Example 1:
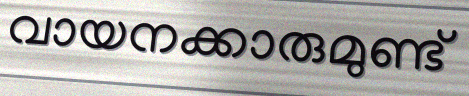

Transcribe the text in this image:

വായനക്കാരുമുണ്ട്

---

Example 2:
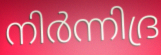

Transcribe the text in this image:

നിർന്നിദ്ര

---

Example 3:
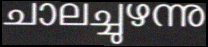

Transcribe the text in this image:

ചാലച്ചുഴന്നു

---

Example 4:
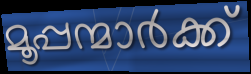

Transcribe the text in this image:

മൂപ്പന്മാർക്ക്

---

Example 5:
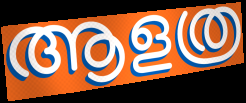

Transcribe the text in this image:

ആളത്ര